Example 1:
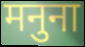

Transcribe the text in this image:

मनुना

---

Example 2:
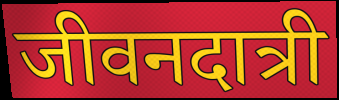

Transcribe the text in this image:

जीवनदात्री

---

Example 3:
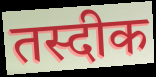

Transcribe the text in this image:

तस्‍दीक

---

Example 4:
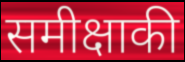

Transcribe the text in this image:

समीक्षाकी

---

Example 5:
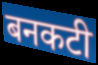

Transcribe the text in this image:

बनकटी